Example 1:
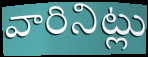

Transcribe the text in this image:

వారినిట్లు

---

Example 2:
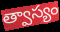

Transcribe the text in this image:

త్వాస్యం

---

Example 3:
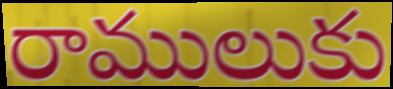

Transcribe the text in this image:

రాములుకు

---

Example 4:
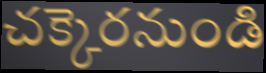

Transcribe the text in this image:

చక్కెరనుండి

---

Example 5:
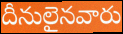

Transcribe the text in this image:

దీనులైనవారు